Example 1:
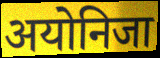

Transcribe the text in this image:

अयोनिजा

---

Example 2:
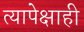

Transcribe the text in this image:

त्यापेक्षाही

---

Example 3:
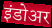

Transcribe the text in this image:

इंडोअर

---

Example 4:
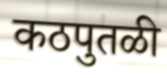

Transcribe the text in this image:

कठपुतळी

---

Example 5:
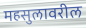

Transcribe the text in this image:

महसुलावरील